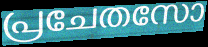
പ്രചേതസോ